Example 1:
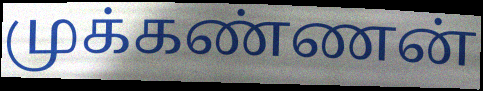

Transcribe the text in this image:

முக்கண்ணன்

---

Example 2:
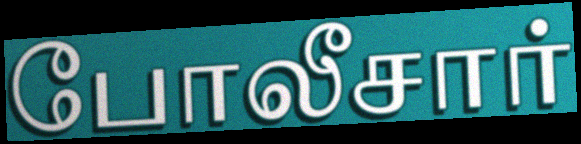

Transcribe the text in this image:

போலீசார்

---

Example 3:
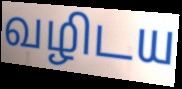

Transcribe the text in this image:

வழிடய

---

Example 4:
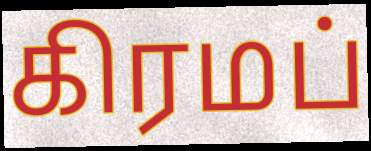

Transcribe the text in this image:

கிரமப்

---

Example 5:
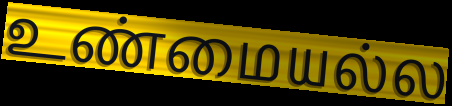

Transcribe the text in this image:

உண்மையல்ல